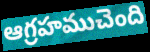
ఆగ్రహముచెంది